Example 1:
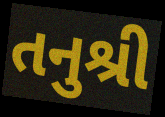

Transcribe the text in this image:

તનુશ્રી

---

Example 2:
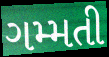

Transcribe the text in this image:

ગમ્મતી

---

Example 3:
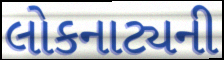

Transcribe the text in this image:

લોકનાટ્યની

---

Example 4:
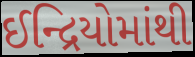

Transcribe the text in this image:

ઈન્દ્રિયોમાંથી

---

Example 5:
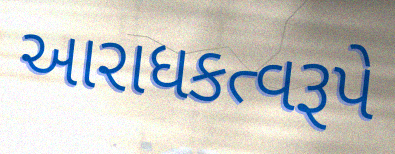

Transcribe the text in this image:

આરાધકત્વરૂપે